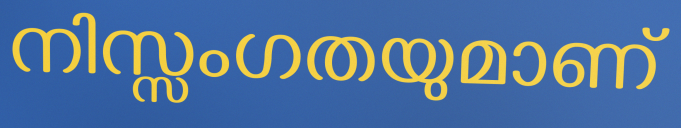
നിസ്സംഗതയുമാണ്